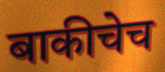
बाकीचेच